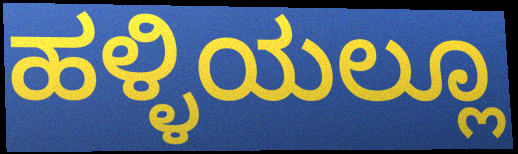
ಹಳ್ಳಿಯಲ್ಲೂ